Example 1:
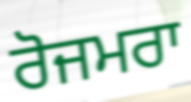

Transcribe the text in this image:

ਰੋਜਮਰਾ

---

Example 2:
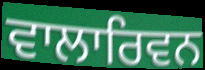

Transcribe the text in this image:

ਵਾਲਾਰਿਵਨ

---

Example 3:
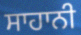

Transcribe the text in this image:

ਸਾਹਾਨੀ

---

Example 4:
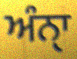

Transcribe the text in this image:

ਅੰਨੑਾ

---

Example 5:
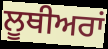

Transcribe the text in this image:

ਲੂਥੀਅਰਾਂ